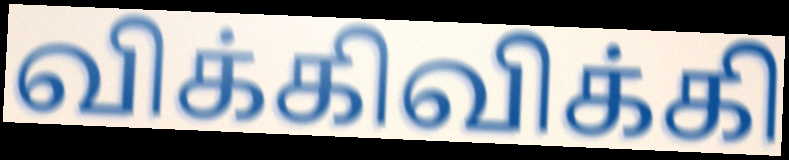
விக்கிவிக்கி